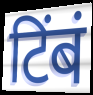
टिंबं